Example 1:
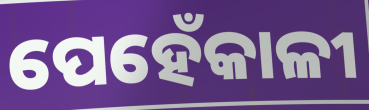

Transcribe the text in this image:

ପେହେଁକାଳୀ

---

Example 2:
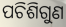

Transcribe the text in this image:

ପଚିଶିଗୁଣ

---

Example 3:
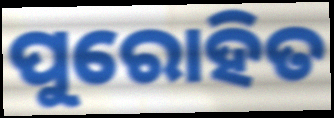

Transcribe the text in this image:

ପୁରୋହିତ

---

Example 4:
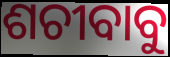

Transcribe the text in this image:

ଶଚୀବାବୁ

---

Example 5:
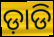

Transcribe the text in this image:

ଡ଼ାଡି